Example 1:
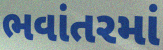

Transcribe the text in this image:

ભવાંતરમાં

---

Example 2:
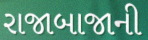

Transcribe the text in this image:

રાજાબાજાની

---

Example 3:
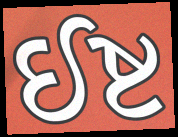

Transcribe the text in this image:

ઈષ્ટ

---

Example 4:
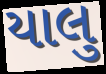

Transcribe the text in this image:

યાલુ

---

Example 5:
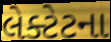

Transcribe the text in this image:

લેક્ટેટના